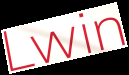
Lwin